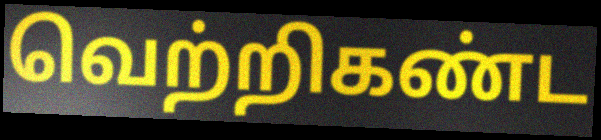
வெற்றிகண்ட